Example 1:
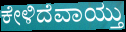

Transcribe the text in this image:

ಕೇಳಿದೆವಾಯ್ತು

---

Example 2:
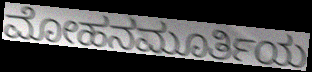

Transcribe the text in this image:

ಮೋಹನಮೂರ್ತಿಯ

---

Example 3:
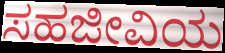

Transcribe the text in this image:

ಸಹಜೀವಿಯ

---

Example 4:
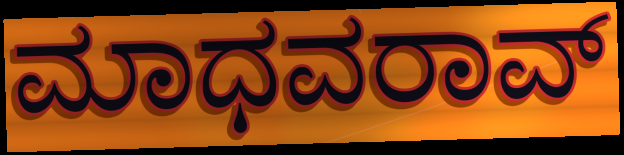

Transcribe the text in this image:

ಮಾಧವರಾವ್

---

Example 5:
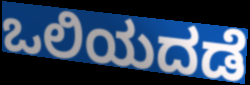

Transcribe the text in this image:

ಒಲಿಯದಡೆ